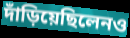
দাঁড়িয়েছিলেনও